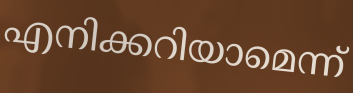
എനിക്കറിയാമെന്ന്